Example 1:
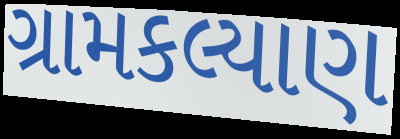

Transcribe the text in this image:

ગ્રામકલ્યાણ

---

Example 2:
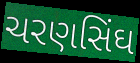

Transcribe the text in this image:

ચરણસિંઘ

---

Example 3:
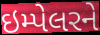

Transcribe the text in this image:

ઇમ્પેલરને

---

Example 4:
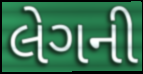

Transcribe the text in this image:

લેગની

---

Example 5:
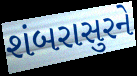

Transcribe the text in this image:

શંબરાસુરને